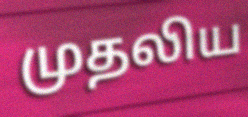
முதலிய